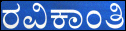
ರವಿಕಾಂತಿ